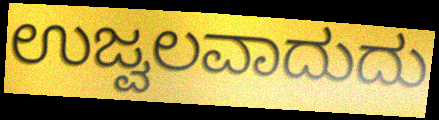
ಉಜ್ವಲವಾದುದು